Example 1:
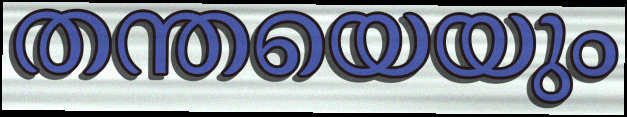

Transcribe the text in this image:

തന്തയെയും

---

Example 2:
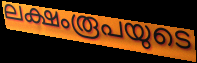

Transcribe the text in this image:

ലക്ഷംരൂപയുടെ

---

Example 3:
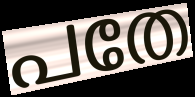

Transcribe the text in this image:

പതേ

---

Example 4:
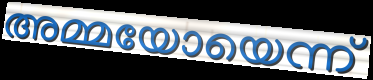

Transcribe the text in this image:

അമ്മയോയെന്ന്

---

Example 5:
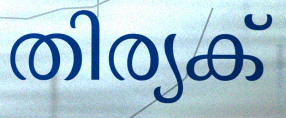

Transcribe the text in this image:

തിര്യക്